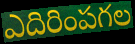
ఎదిరింపగల